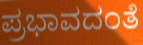
ಪ್ರಭಾವದಂತೆ